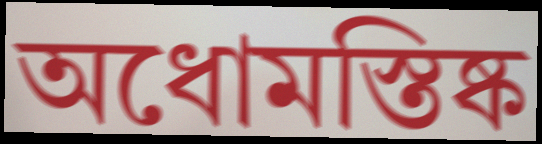
অধোমস্তিষ্ক